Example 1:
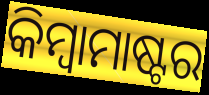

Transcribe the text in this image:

କିମ୍ୱାମାଷ୍ଟର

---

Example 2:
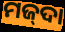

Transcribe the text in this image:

ମଜ୍‌ଦା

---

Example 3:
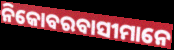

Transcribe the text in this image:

ନିକୋବରବାସୀମାନେ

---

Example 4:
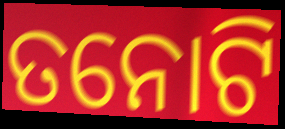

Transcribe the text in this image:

ତନୋଟି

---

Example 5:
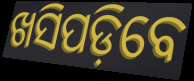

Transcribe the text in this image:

ଖସିପଡ଼ିବେ